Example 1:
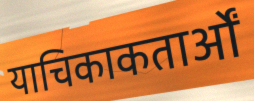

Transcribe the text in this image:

याचिकाकतार्ओं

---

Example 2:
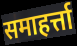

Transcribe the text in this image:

समाहर्त्ता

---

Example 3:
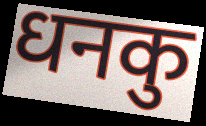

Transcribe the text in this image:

धनकु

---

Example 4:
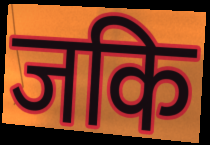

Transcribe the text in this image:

जकि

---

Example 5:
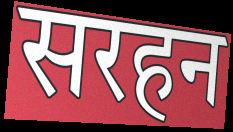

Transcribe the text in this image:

सरहन